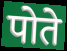
पोते